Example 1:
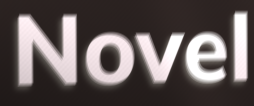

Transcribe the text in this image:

Novel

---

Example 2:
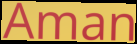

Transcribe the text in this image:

Aman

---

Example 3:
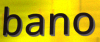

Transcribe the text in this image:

bano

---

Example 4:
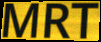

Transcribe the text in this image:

MRT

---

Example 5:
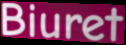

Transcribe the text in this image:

Biuret